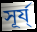
সূৰ্য্